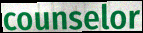
counselor